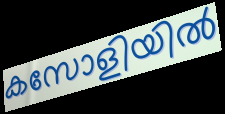
കസോളിയിൽ